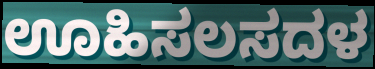
ಊಹಿಸಲಸದಳ